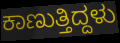
ಕಾಣುತ್ತಿದ್ದಳು